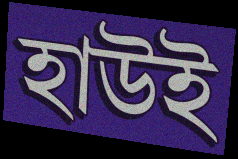
হাউই